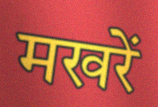
मखरें